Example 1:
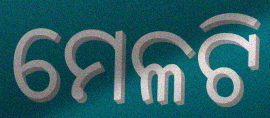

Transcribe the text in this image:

ମେଳଟି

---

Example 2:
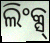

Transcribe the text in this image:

ଲିଂକ୍ସ୍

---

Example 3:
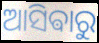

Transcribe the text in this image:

ଆସିଵାରୁ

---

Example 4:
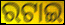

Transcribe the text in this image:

ରଟାଇ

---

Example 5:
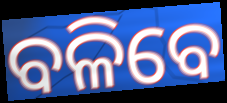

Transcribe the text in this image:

ବଳିବେ